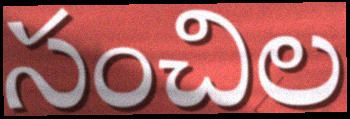
సంచిల